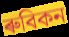
ৰুবিকন